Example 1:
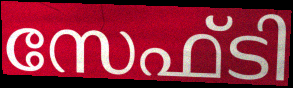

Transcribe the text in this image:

സേഫ്ടി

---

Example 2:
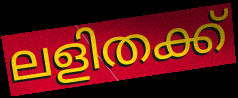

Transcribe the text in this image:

ലളിതക്ക്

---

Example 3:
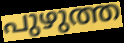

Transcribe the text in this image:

പുഴുത്ത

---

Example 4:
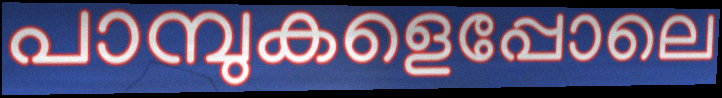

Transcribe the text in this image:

പാമ്പുകളെപ്പോലെ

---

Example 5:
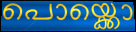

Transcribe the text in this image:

പൊയ്ക്കൊ